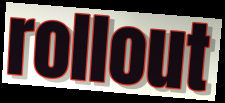
rollout